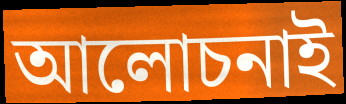
আলোচনাই